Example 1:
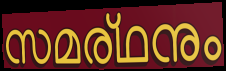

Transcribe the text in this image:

സമര്ഥനും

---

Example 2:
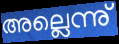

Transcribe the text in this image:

അല്ലെന്നു്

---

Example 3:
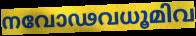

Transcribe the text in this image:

നവോഢവധൂമിവ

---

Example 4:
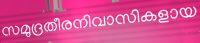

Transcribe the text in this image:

സമുദ്രതീരനിവാസികളായ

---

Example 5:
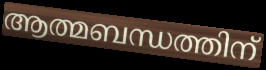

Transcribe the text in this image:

ആത്മബന്ധത്തിന്